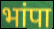
भांपा